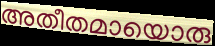
അതീതമായൊരു